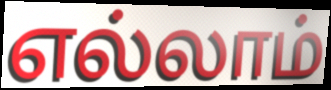
எல்லாம்